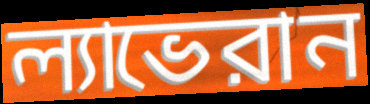
ল্যাভেরান